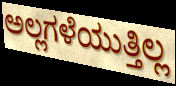
ಅಲ್ಲಗಳೆಯುತ್ತಿಲ್ಲ